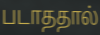
படாததால்